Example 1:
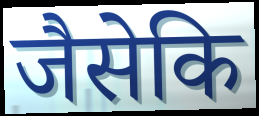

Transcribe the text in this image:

जैसेकि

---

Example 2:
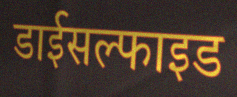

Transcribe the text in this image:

डाईसल्फाइड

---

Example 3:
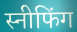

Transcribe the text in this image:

स्नीफिंग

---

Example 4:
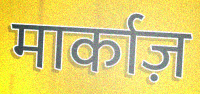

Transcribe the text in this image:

मार्काज़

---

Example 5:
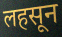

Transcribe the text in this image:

लहसून